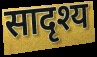
सादृश्य